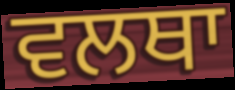
ਵਲਥਾ